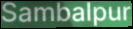
Sambalpur